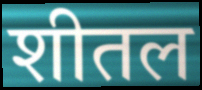
शीतल